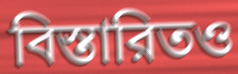
বিস্তারিতও